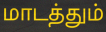
மாடத்தும்